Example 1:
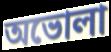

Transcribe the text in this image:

অভোলা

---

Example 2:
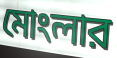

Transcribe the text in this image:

মোংলার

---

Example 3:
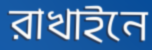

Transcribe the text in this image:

রাখাইনে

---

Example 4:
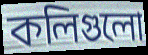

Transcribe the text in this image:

কলিগুলো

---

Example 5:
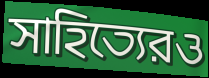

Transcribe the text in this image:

সাহিত্যেরও